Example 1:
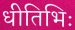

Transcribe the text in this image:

धीतिभिः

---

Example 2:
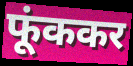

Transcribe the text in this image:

फूंककर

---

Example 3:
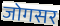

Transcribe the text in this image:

जोगसर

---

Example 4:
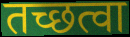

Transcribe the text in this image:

तच्छत्वा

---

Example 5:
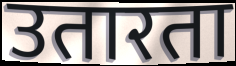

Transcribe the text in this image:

उतारता